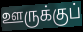
ஊருக்குப்